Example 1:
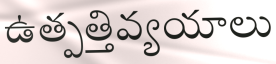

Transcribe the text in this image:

ఉత్పత్తివ్యయాలు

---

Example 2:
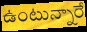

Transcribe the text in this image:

ఉంటున్నారే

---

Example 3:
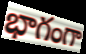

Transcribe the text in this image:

భాగంగా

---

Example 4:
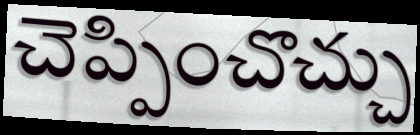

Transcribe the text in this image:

చెప్పించొచ్చు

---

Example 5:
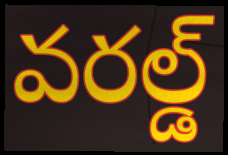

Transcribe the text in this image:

వరల్డ్